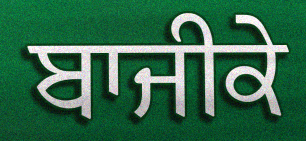
ਬਾਜੀਕੇ